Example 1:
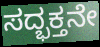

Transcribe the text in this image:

ಸದ್ಭಕ್ತನೇ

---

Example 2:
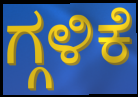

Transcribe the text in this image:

ಗ್ಗಳಿಕೆ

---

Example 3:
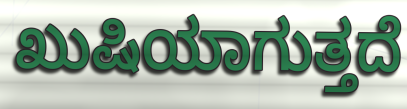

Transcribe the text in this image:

ಖುಷಿಯಾಗುತ್ತದೆ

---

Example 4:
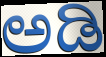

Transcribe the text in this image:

ಅಡಿ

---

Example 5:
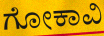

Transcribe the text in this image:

ಗೋಕಾವಿ